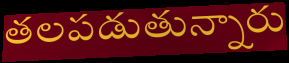
తలపడుతున్నారు